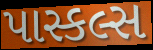
પાસ્કલ્સ